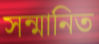
সন্মানিত